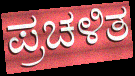
ಪ್ರಚಳಿತ